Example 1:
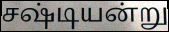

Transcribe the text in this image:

சஷ்டியன்று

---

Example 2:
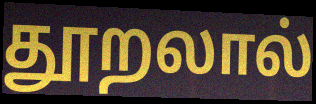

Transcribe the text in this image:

தூறலால்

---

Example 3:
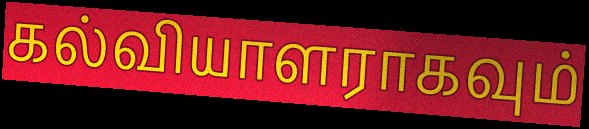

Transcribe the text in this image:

கல்வியாளராகவும்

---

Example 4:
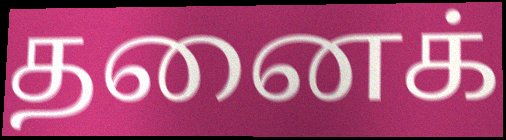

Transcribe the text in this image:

தனைக்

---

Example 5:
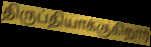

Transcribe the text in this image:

திருப்தியாக்குகிறார்